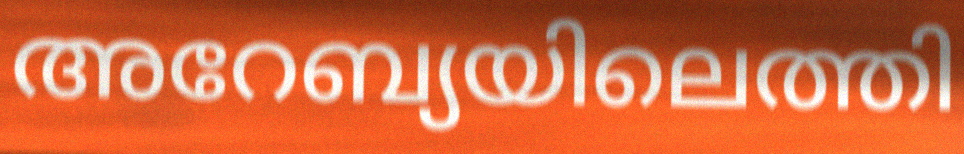
അറേബ്യയിലെത്തി